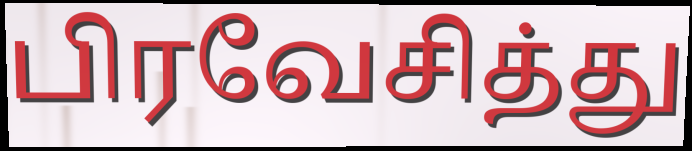
பிரவேசித்து